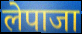
लेपाजा